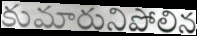
కుమారునిపోలిన